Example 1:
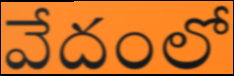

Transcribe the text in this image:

వేదంలో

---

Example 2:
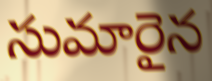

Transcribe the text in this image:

సుమారైన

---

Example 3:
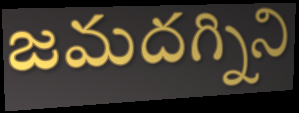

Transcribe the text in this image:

జమదగ్నిని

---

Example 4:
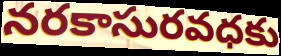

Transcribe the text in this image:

నరకాసురవధకు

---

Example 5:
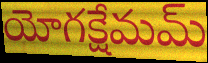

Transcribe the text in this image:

యోగక్షేమమ్